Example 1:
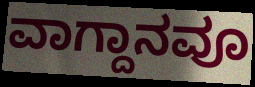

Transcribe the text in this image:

ವಾಗ್ದಾನವೂ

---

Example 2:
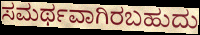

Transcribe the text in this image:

ಸಮರ್ಥವಾಗಿರಬಹುದು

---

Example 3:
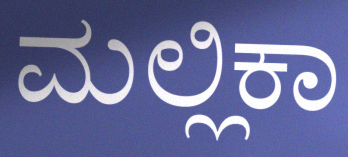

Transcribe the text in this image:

ಮಲ್ಲಿಕಾ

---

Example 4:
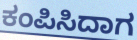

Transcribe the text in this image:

ಕಂಪಿಸಿದಾಗ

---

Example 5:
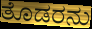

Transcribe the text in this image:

ತೊಡರನು